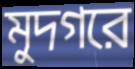
মুদগরে